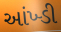
આંખ્ડી